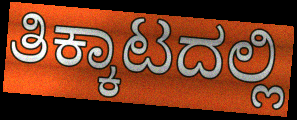
ತಿಕ್ಕಾಟದಲ್ಲಿ